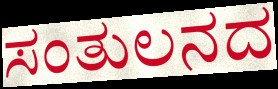
ಸಂತುಲನದ